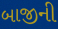
બાજીની